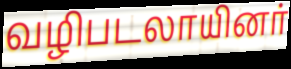
வழிபடலாயினர்